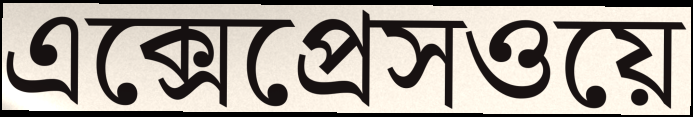
এক্সেপ্রেসওয়ে